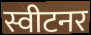
स्वीटनर